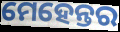
ମେହେନ୍ତର